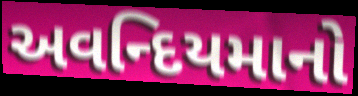
અવન્દિયમાનો